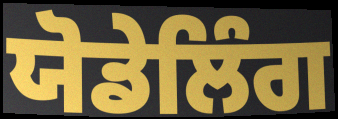
ਯੋਡੇਲਿੰਗ